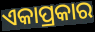
ଏକାପ୍ରକାର